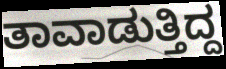
ತಾವಾಡುತ್ತಿದ್ದ